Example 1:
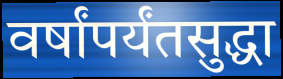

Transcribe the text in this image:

वर्षांपर्यंतसुद्धा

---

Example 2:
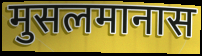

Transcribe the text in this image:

मुसलमानास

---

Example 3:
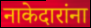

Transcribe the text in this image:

नाकेदारांना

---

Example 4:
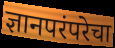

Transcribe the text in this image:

ज्ञानपरंपरेचा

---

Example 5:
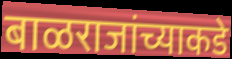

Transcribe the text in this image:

बाळराजांच्याकडे